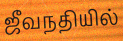
ஜீவநதியில்